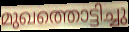
മുഖത്തൊട്ടിച്ചു